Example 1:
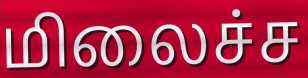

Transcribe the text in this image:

மிலைச்ச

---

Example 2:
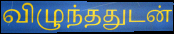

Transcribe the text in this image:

விழுந்ததுடன்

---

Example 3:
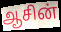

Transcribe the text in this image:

ஆசின்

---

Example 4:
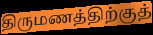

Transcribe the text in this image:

திருமணத்திற்குத்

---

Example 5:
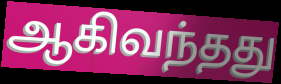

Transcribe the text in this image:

ஆகிவந்தது